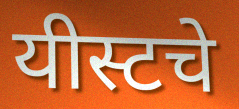
यीस्टचे